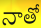
నాతో